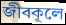
জীবকূলে